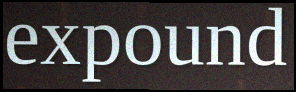
expound